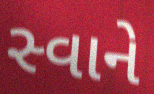
સ્વાને